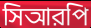
সিআরপি